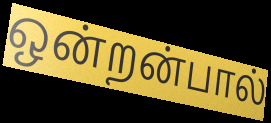
ஒன்றன்பால்